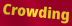
Crowding